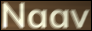
Naav